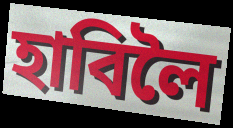
হাবিলৈ